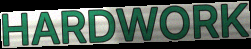
HARDWORK